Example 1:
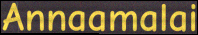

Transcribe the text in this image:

Annaamalai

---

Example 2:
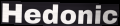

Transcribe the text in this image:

Hedonic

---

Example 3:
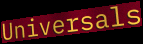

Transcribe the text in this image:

Universals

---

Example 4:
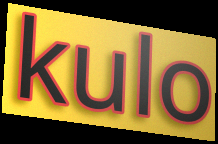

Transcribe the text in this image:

kulo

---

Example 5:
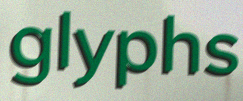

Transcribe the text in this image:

glyphs